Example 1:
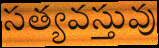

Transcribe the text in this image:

సత్యవస్తువు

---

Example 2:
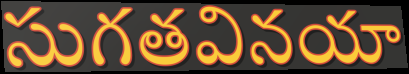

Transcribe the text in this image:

సుగతవినయా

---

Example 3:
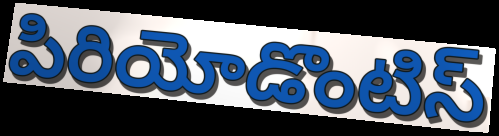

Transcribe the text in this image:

పిరియోడొంటిస్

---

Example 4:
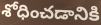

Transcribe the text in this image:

శోధించడానికి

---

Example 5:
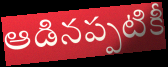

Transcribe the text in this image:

ఆడినప్పటికీ